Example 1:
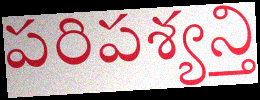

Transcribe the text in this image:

పరిపశ్యన్తి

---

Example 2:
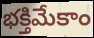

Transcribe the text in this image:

భక్తిమేకాం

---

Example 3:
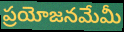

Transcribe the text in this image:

ప్రయోజనమేమీ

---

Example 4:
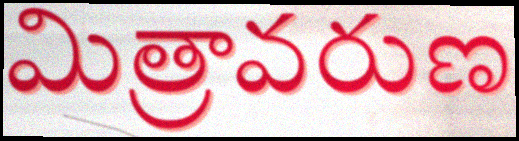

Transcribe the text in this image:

మిత్రావరుణ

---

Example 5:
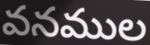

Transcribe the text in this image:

వనముల